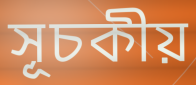
সূচকীয়